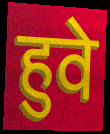
हुवे